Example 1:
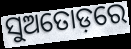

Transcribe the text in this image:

ସୁଅତୋଡ଼ରେ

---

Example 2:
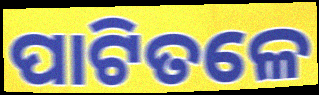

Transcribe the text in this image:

ପାଟିତଳେ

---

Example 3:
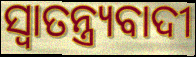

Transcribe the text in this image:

ସ୍ୱାତନ୍ତ୍ର୍ୟବାଦୀ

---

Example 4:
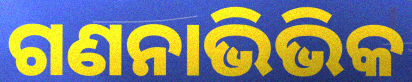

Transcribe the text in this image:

ଗଣନାଭିଭିକ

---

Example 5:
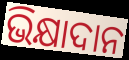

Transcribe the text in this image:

ଭିକ୍ଷାଦାନ